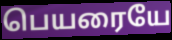
பெயரையே